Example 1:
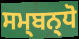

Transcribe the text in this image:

ਸਮ੍ਬਨ੍ਧੋ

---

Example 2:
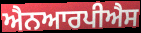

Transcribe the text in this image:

ਐਨਆਰਪੀਐਸ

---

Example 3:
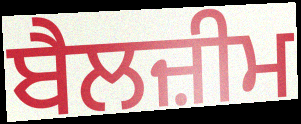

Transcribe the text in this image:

ਬੈਲਜ਼ੀਮ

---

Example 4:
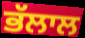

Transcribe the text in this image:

ਭੱਲਾਲ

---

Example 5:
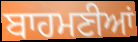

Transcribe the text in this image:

ਬਾਹਮਣੀਆਂ